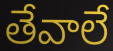
తేవాలే